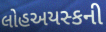
લોહઅયસ્કની